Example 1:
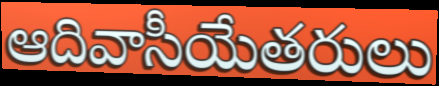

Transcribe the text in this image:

ఆదివాసీయేతరులు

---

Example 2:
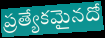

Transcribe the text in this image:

ప్రత్యేకమైనదో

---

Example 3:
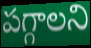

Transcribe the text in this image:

పగ్గాలని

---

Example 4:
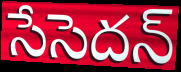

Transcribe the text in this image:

సేసెదన్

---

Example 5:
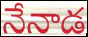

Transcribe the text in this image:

నేనాడ